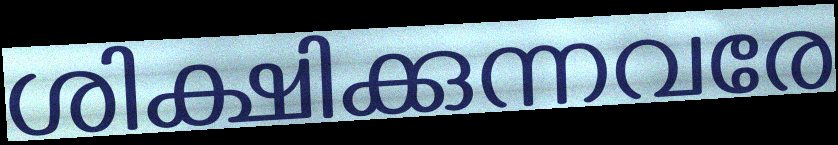
ശിക്ഷിക്കുന്നവരേ